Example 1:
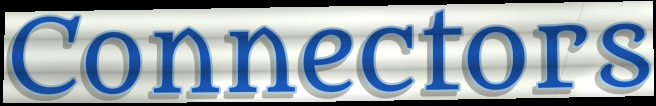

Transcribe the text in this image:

Connectors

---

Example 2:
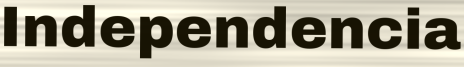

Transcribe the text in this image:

Independencia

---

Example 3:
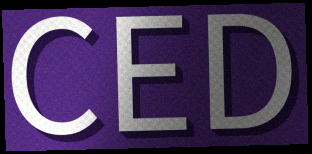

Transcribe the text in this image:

CED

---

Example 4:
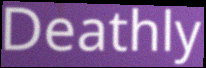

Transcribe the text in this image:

Deathly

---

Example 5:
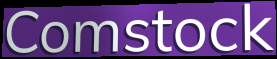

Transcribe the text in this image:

Comstock